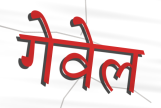
गेवेल